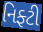
નિફ્ટી